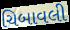
ચિબાવલી